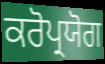
ਕਰੋਪ੍ਰਯੋਗ